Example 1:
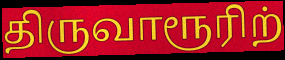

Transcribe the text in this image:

திருவாரூரிற்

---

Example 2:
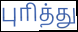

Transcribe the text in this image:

புரித்து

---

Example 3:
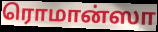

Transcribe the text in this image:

ரொமான்ஸா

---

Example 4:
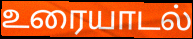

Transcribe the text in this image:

உரையாடல்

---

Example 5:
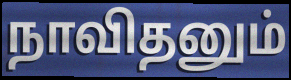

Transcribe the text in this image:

நாவிதனும்